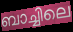
ബാച്ചിലെ